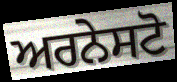
ਅਰਨੇਸਟੋ